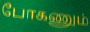
போகணும்